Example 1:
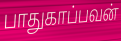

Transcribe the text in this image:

பாதுகாப்பவன்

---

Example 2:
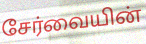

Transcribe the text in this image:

சேர்வையின்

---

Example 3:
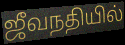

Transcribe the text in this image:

ஜீவநதியில்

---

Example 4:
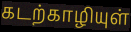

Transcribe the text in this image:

கடற்காழியுள்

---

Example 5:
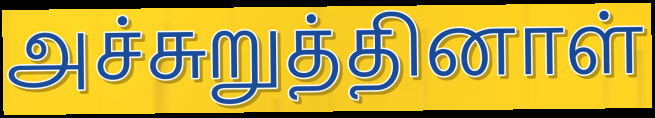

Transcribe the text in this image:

அச்சுறுத்தினாள்